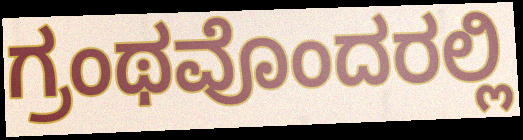
ಗ್ರಂಥವೊಂದರಲ್ಲಿ